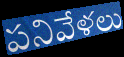
పనివేళలు